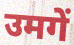
उमगें